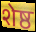
शेष्ठ